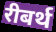
रीबर्थ